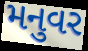
મનુવર